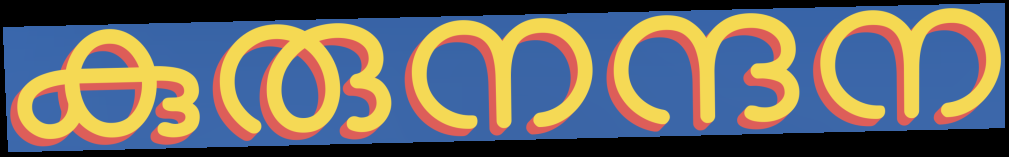
കുരുനന്ദന